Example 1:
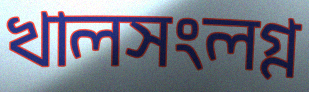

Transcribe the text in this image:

খালসংলগ্ন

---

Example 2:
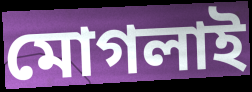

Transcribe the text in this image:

মোগলাই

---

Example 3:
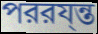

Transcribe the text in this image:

পররয্ন্ত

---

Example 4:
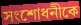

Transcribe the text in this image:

সংশোধনীকে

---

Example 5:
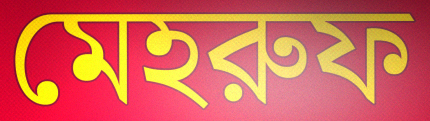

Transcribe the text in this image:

মেহরুফ